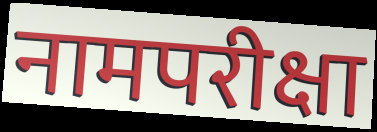
नामपरीक्षा